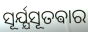
ସୂର୍ଯ୍ଯସୂତଵାର